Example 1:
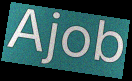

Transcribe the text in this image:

Ajob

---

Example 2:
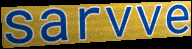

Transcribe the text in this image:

sarvve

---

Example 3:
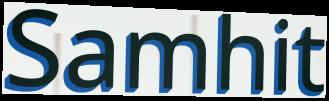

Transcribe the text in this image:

Samhit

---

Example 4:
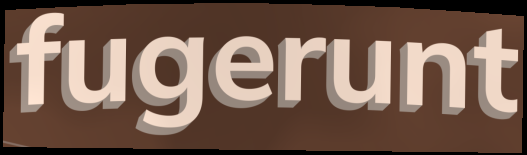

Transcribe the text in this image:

fugerunt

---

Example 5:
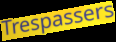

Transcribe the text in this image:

Trespassers